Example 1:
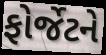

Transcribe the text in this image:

ફોર્જેટને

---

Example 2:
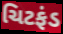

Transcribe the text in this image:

ચિટફંડ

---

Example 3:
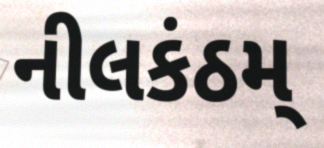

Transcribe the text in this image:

નીલકંઠમ્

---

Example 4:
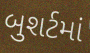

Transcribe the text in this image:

બુશર્ટમાં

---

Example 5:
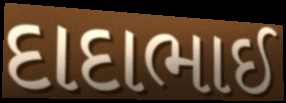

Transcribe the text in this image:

દાદાભાઈ